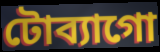
টোব্যাগো